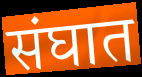
संघात